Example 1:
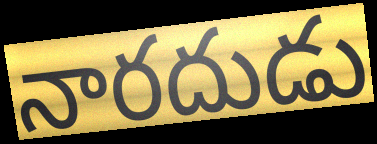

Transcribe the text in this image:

నారదుడు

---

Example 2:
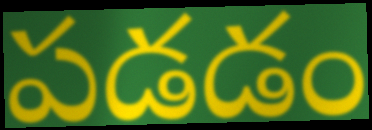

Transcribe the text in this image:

పడడం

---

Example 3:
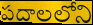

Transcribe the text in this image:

పదాలలోని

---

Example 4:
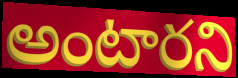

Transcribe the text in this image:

అంటారని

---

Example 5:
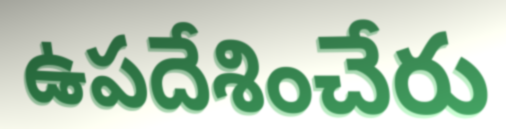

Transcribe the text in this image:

ఉపదేశించేరు